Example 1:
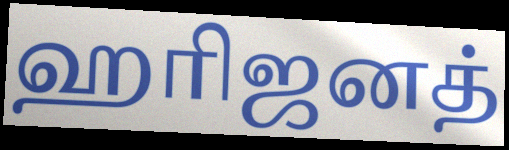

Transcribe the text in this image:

ஹரிஜனத்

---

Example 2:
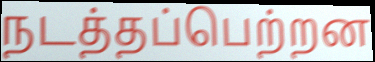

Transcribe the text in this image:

நடத்தப்பெற்றன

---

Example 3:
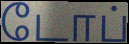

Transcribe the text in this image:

டோப்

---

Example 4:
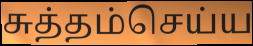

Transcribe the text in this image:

சுத்தம்செய்ய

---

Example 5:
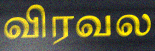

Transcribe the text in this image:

விரவல